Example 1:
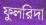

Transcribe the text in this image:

ফুলরিদা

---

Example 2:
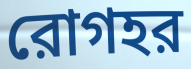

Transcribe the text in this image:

রোগহর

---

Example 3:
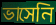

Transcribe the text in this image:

ভাসেনি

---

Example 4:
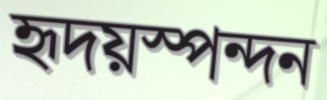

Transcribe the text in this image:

হৃদয়স্পন্দন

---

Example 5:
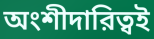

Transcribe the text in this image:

অংশীদারিত্বই